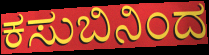
ಕಸುಬಿನಿಂದ